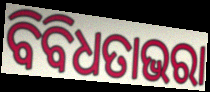
ବିବିଧତାଭରା